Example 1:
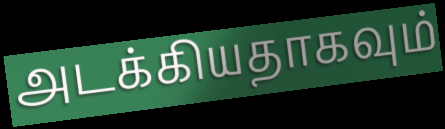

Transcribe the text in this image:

அடக்கியதாகவும்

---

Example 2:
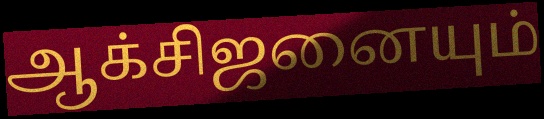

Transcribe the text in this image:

ஆக்சிஜனையும்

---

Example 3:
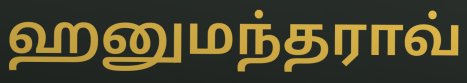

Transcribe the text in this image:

ஹனுமந்தராவ்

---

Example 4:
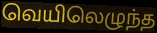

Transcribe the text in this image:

வெயிலெழுந்த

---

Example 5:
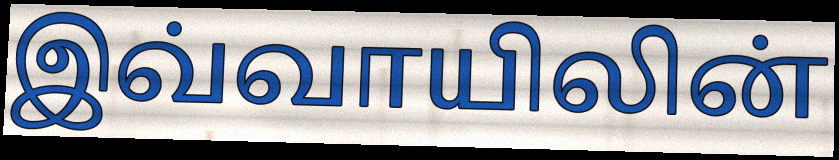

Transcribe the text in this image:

இவ்வாயிலின்